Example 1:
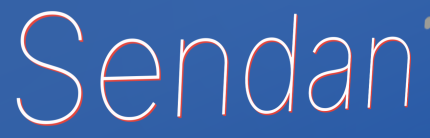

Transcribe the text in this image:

Sendan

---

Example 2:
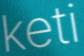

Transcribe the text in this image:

keti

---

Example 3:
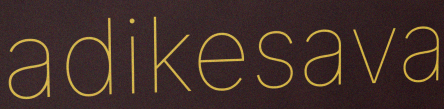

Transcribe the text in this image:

adikesava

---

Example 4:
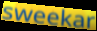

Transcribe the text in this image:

sweekar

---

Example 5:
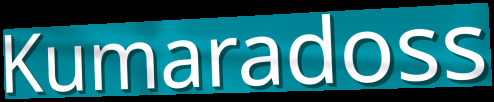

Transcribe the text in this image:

Kumaradoss